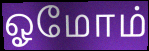
ஓமோம்